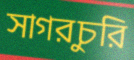
সাগরচুরি